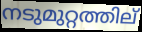
നടുമുറ്റത്തില്